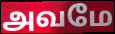
அவமே